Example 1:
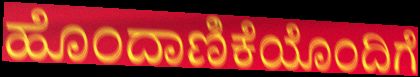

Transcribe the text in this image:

ಹೊಂದಾಣಿಕೆಯೊಂದಿಗೆ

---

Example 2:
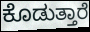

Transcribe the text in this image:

ಕೊಡುತ್ತಾರೆ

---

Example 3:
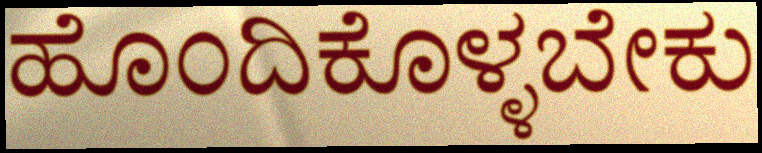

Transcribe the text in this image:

ಹೊಂದಿಕೊಳ್ಳಬೇಕು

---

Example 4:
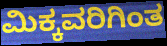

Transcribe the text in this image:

ಮಿಕ್ಕವರಿಗಿಂತ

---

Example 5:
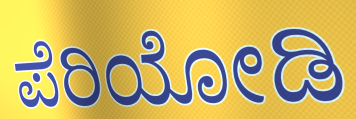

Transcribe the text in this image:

ಪೆರಿಯೋಡಿ